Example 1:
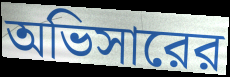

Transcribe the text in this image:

অভিসারের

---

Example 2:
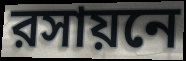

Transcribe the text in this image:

রসায়নে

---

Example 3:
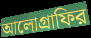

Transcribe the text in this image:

আলোগ্রাফির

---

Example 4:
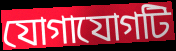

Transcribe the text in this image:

যোগাযোগটি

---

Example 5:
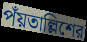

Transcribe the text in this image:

পঁয়তাল্লিশের